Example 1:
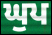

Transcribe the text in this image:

ਘੁਪ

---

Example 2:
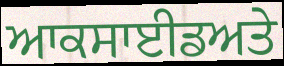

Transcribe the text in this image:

ਆਕਸਾਈਡਅਤੇ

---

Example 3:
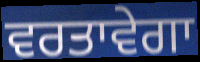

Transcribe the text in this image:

ਵਰਤਾਵੇਗਾ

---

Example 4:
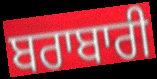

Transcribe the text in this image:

ਬਰਾਬਾਰੀ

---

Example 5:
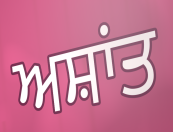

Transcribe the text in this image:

ਅਸ਼ਾਂਤ